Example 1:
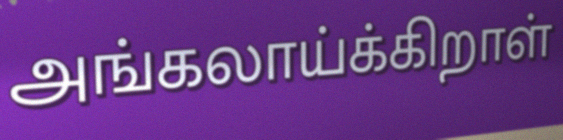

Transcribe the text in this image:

அங்கலாய்க்கிறாள்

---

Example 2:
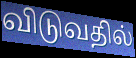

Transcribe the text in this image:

விடுவதில்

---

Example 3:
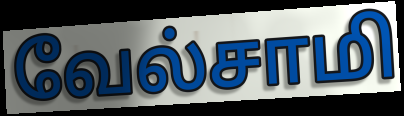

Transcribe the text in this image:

வேல்சாமி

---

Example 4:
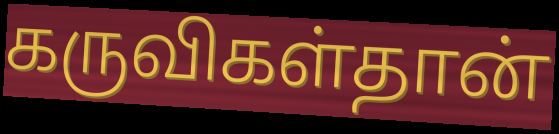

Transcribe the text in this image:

கருவிகள்தான்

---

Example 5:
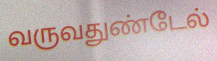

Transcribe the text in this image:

வருவதுண்டேல்